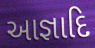
આજ્ઞાદિ